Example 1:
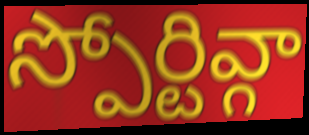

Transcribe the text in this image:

స్పోర్టివ్గా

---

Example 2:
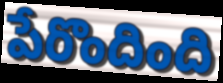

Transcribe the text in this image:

పేరొందింది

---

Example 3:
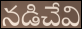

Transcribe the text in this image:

నడిచేవి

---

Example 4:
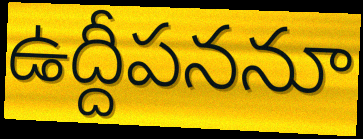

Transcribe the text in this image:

ఉద్దీపననూ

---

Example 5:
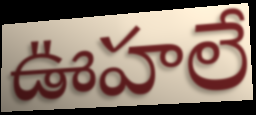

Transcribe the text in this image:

ఊహలే